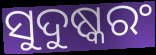
ସୁଦୁଷ୍କରଂ